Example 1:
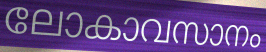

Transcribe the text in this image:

ലോകാവസാനം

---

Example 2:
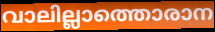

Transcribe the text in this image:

വാലില്ലാത്തൊരാന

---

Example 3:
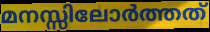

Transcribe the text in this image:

മനസ്സിലോർത്തത്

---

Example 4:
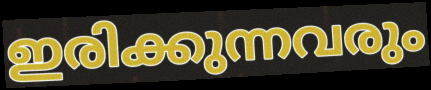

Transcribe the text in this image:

ഇരിക്കുന്നവരും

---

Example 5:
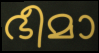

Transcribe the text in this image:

ഭീമാ